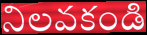
నిలవకండి